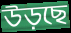
উড়ছে